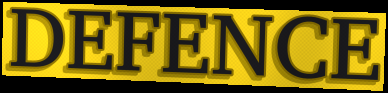
DEFENCE